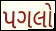
પગલો